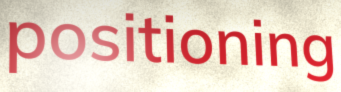
positioning